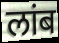
लांब